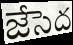
జేసెద